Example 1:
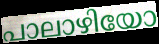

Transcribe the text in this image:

പാലാഴിയോ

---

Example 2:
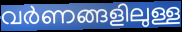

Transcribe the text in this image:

വർണങ്ങളിലുള്ള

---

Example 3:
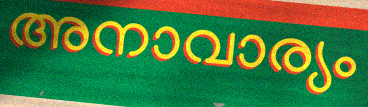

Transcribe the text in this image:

അനാവാര്യം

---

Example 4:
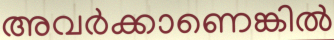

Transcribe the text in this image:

അവർക്കാണെങ്കിൽ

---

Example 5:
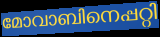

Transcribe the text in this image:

മോവാബിനെപ്പറ്റി